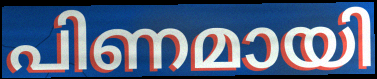
പിണമായി